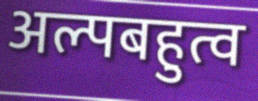
अल्पबहुत्व